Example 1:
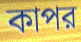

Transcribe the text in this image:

কাপর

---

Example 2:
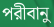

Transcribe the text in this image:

পরীবানু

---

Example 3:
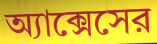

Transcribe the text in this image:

অ্যাক্সেসের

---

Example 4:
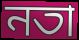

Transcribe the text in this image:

নতা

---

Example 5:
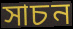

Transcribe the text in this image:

সাচন